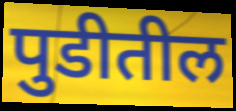
पुडीतील